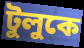
টুলুকে